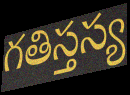
గతిస్తస్య